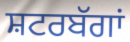
ਸ਼ਟਰਬੱਗਾਂ